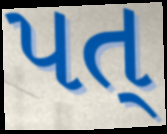
પત્